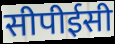
सीपीईसी